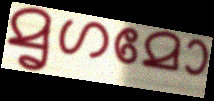
മൃഗമോ